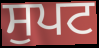
ਸੁਪਟ